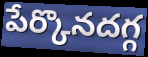
పేర్కొనదగ్గ